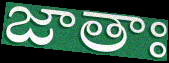
జాతాః